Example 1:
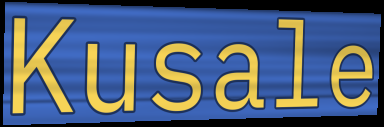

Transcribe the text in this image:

Kusale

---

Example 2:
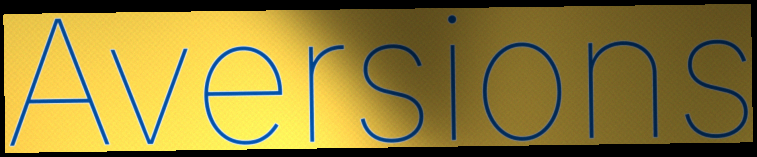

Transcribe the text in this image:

Aversions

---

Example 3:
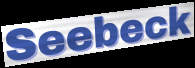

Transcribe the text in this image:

Seebeck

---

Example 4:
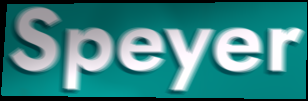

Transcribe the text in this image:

Speyer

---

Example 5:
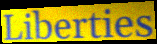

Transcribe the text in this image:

Liberties